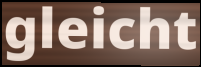
gleicht